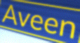
Aveen